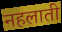
नहलाती